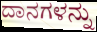
ದಾನಗಳನ್ನು